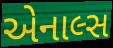
એનાલ્સ